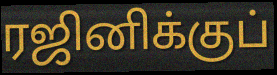
ரஜினிக்குப்